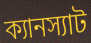
ক্যানস্যাট